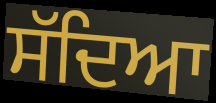
ਸੱਦਿਆ